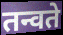
तन्वते